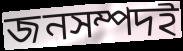
জনসম্পদই